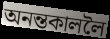
অনন্তকাললৈ